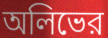
অলিভের